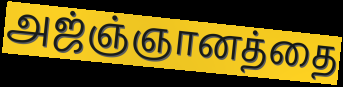
அஜ்ஞ்ஞானத்தை